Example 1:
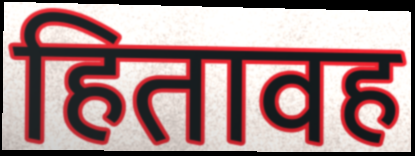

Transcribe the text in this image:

हितावह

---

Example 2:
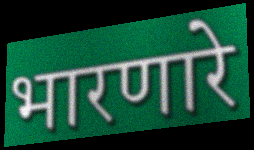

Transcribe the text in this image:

भारणारे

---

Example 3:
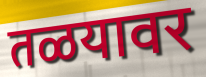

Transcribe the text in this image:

तळयावर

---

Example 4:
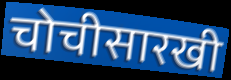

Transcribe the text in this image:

चोचीसारखी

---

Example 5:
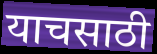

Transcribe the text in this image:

याचसाठी